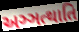
અઞ્ઞત્થાતિ